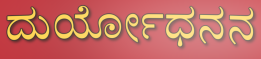
ದುರ್ಯೋಧನನ